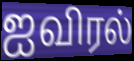
ஐவிரல்